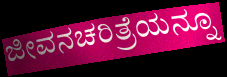
ಜೀವನಚರಿತ್ರೆಯನ್ನೂ